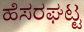
ಹೆಸರಘಟ್ಟ